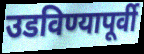
उडविण्यापूर्वी